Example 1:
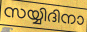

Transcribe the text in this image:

സയ്യിദിനാ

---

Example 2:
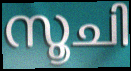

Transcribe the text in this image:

സൂചി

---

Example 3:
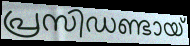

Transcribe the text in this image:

പ്രസിഡണ്ടായ്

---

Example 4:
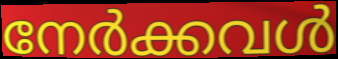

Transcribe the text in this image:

നേർക്കവൾ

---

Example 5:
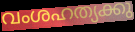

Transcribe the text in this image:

വംശഹത്യക്കു